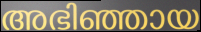
അഭിഞ്ഞായ